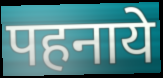
पहनाये